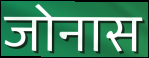
जोनास